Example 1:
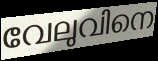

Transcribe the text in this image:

വേലുവിനെ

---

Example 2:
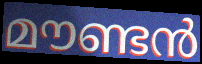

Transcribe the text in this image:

മൗണ്ടൻ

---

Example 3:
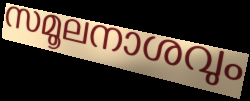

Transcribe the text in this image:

സമൂലനാശവും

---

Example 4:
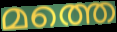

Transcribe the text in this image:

മത്തെ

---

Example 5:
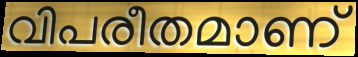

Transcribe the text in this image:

വിപരീതമാണ്